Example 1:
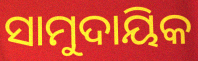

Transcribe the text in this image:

ସାମୁଦାୟିକ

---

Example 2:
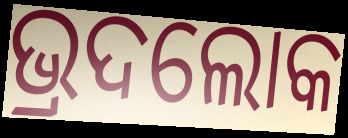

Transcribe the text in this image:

ଭ୍ରଦଲୋକ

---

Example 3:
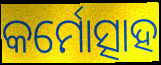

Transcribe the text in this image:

କର୍ମୋତ୍ସାହ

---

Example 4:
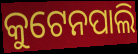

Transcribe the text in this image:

କୁଟେନପାଲି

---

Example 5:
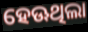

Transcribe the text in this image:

ହେଊଥିଲା